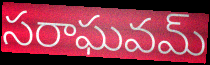
సరాఘవమ్